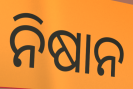
ନିଷାନ